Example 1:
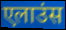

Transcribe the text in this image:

एलाउंस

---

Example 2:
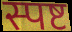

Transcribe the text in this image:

स्पष्ट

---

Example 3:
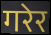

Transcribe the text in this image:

गरेर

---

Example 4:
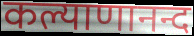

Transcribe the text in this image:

कल्याणानन्द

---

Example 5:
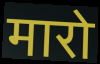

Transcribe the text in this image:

मारो